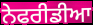
ਨੇਫਰੀਡੀਆ